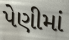
પેણીમાં